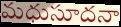
మధుసూదనా